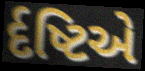
ર્દષ્ટિએ